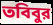
তবিবুর